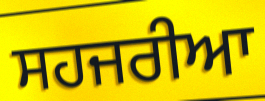
ਸਹਜਰੀਆ